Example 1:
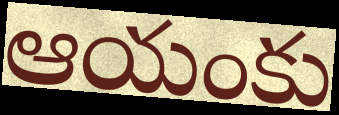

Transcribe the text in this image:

ఆయంకు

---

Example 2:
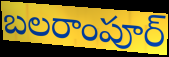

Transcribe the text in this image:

బలరాంపూర్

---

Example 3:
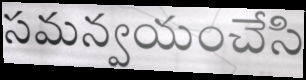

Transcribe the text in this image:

సమన్వయంచేసి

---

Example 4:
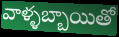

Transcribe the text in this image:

వాళ్ళబ్బాయితో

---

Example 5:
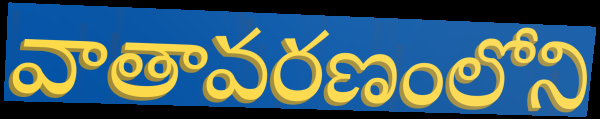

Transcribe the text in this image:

వాతావరణంలోని